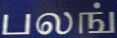
பலங்